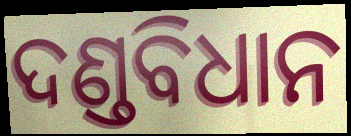
ଦଣ୍ଡବିଧାନ